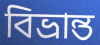
বিভ্রান্ত